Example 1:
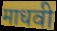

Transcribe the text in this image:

माधवी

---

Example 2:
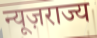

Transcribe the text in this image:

न्यूज़राज्य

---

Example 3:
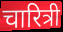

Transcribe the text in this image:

चारित्री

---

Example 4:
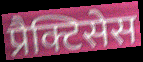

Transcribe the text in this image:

प्रैक्टिसेस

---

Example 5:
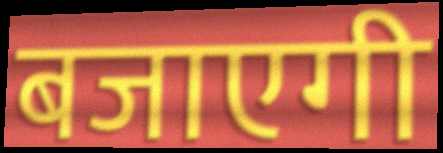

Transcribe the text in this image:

बजाएगी